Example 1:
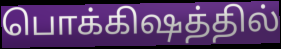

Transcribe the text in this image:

பொக்கிஷத்தில்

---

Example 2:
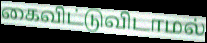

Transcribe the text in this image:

கைவிட்டுவிடாமல்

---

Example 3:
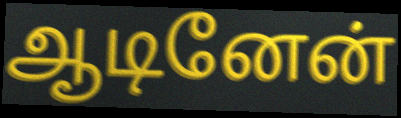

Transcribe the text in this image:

ஆடினேன்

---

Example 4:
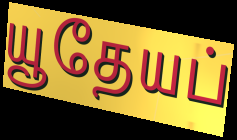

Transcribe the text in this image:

யூதேயப்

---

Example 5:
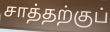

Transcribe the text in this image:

சாத்தற்குப்